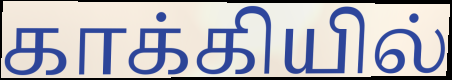
காக்கியில்